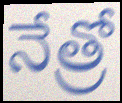
నేత్రో